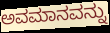
ಅವಮಾನವನ್ನು